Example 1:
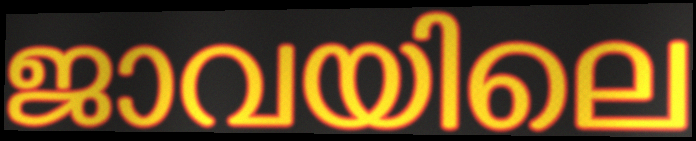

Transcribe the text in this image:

ജാവയിലെ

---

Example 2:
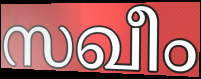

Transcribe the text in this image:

സഖീം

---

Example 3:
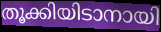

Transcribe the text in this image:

തൂക്കിയിടാനായി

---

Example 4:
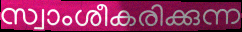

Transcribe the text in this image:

സ്വാംശീകരിക്കുന്ന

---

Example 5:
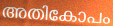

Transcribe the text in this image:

അതികോപം